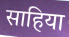
साहिया